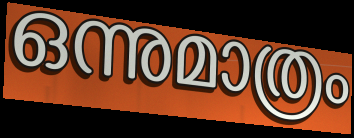
ഒന്നുമാത്രം